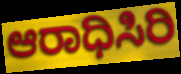
ಆರಾಧಿಸಿರಿ